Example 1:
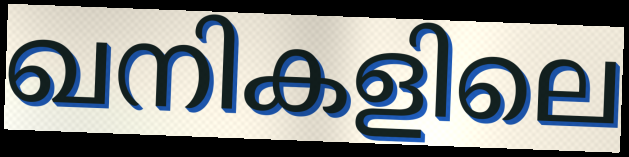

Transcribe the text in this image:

ഖനികളിലെ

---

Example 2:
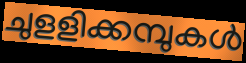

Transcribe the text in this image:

ചുളളിക്കമ്പുകൾ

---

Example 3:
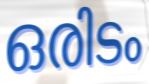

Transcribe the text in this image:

ഒരിടം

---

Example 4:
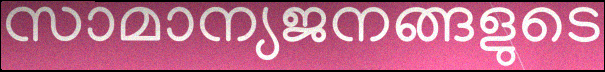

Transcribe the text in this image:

സാമാന്യജനങ്ങളുടെ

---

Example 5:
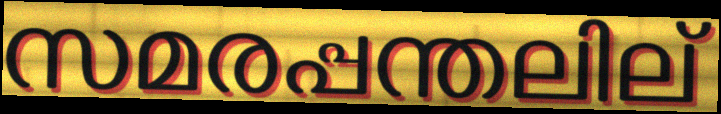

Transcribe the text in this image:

സമരപ്പന്തലില്